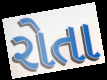
રોતા